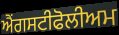
ਐਂਗਸਟੀਫੋਲੀਅਮ